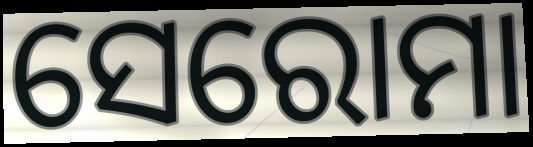
ସେରୋମା